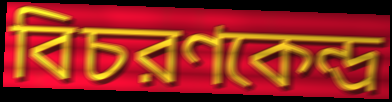
বিচরণকেন্দ্র